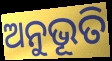
ଅନୁଭୂତି